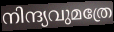
നിന്ദ്യവുമത്രേ